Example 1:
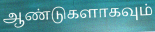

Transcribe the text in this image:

ஆண்டுகளாகவும்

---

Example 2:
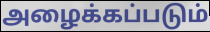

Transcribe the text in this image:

அழைக்கப்படும்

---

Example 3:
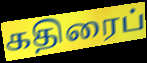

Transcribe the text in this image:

கதிரைப்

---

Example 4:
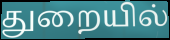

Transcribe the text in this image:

துறையில்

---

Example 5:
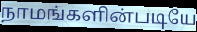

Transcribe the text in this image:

நாமங்களின்படியே